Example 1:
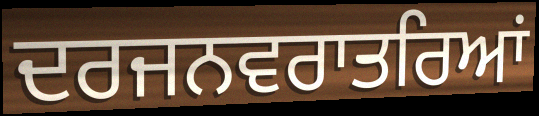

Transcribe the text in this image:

ਦਰਜਨਵਰਾਤਰਿਆਂ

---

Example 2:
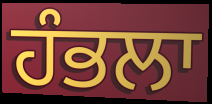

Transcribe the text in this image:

ਹੰਭਲਾ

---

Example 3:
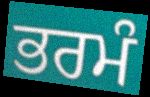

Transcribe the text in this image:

ਭਰਮੰ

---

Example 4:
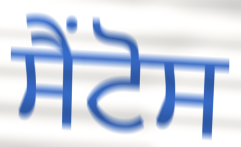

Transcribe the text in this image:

ਸੈਂਟੋਸ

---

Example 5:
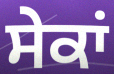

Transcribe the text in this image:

ਸੇਕਾਂ